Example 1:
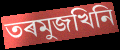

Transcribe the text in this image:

তৰমুজখিনি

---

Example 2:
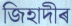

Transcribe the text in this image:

জিহাদীৰ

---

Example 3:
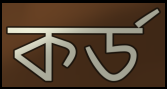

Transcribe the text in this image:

কৰ্ড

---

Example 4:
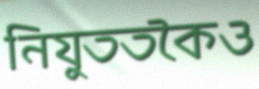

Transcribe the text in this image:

নিযুততকৈও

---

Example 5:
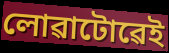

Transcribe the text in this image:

লোৱাটোৱেই